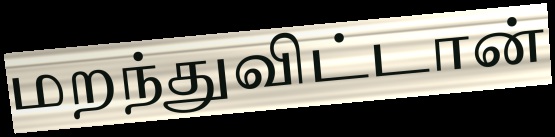
மறந்துவிட்டான்